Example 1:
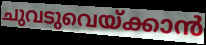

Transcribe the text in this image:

ചുവടുവെയ്ക്കാൻ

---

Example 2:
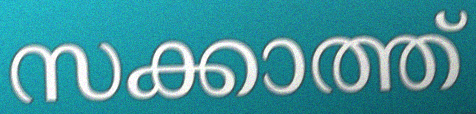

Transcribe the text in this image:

സക്കാത്ത്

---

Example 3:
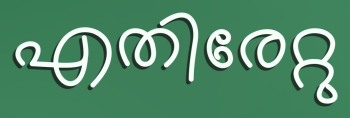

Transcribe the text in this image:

എതിരേറ്റു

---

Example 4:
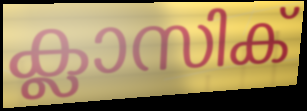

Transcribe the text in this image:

ക്ലാസിക്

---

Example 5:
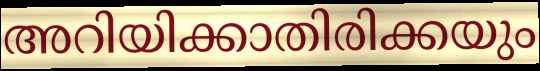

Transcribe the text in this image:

അറിയിക്കാതിരിക്കയും